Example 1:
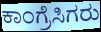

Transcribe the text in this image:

ಕಾಂಗ್ರೆಸಿಗರು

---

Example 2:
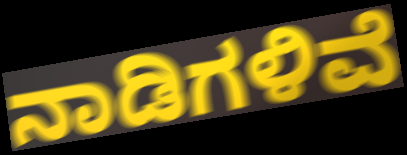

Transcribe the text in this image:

ನಾಡಿಗಳಿವೆ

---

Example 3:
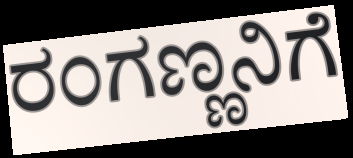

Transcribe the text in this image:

ರಂಗಣ್ಣನಿಗೆ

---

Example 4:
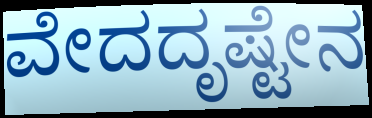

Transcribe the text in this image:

ವೇದದೃಷ್ಟೇನ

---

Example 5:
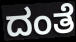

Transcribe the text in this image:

ದಂತೆ